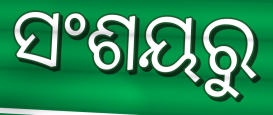
ସଂଶୟରୁ